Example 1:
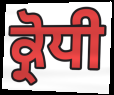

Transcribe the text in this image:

ਕ੍ਰੋਧੀ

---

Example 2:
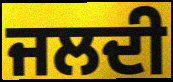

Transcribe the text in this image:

ਜਲਦੀ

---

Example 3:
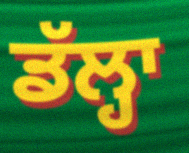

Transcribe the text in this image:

ਡੱਲ੍ਹਾ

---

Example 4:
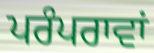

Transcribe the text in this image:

ਪਰੰਪਰਾਵਾਂ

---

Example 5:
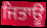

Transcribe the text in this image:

ਜਿਤਾਊ